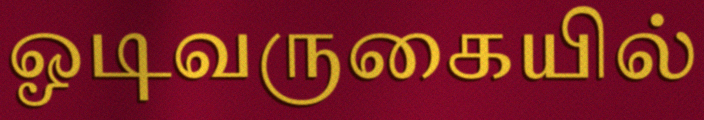
ஓடிவருகையில்